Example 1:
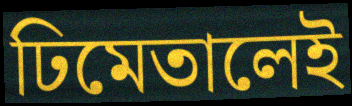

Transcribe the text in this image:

ঢিমেতালেই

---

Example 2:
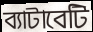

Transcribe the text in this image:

ব্যাটাবেটি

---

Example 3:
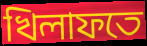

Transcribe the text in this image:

খিলাফতে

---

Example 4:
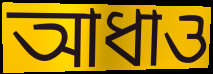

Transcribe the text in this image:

আধাও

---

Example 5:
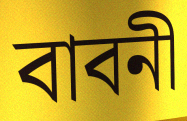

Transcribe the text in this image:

বাবনী